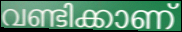
വണ്ടിക്കാണ്